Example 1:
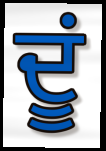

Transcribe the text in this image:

ਦੂਂ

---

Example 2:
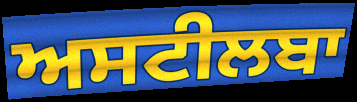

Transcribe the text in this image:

ਅਸਟੀਲਬਾ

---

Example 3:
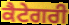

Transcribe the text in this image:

ਕੈਟੇਗਰੀ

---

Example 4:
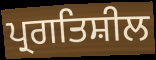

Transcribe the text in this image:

ਪ੍ਰਗਤਿਸ਼ੀਲ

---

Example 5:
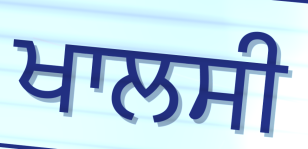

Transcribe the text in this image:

ਖਾਲਸੀ